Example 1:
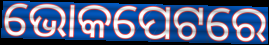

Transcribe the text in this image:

ଭୋକପେଟରେ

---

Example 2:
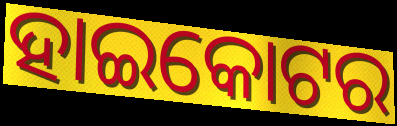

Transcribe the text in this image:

ହାଇକୋଟର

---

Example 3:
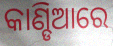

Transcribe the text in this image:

କାଣ୍ଡିଆରେ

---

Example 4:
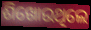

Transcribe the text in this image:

ଶିଖୋଉଥିଲେ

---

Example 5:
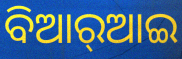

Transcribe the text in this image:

ବିଆର୍‌ଆଇ